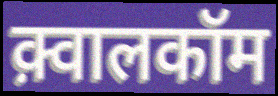
क़्वालकॉम